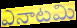
ఎనాటమి